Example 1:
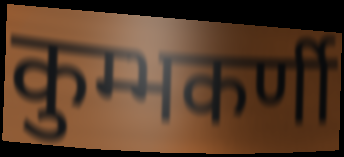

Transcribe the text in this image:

कुम्भकर्णी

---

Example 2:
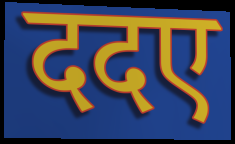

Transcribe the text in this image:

ददए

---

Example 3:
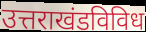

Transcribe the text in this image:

उत्तराखंडविविध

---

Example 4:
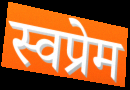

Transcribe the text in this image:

स्वप्रेम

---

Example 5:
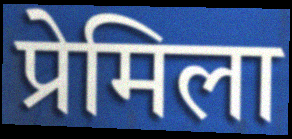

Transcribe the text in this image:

प्रेमिला